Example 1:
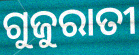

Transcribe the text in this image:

ଗୁଜୁରାତୀ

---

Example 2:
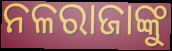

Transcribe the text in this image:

ନଳରାଜାଙ୍କୁ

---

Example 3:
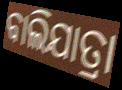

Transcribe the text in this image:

ବାଲିଯାତ୍ରା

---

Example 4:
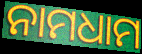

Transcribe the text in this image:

ନାମଧାମ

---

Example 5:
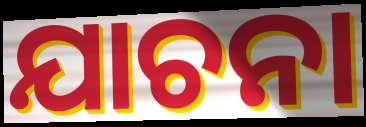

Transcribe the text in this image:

ଯାଚନା